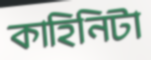
কাহিনিটা